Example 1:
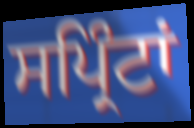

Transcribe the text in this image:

ਸਪ੍ਰਿੰਟਾਂ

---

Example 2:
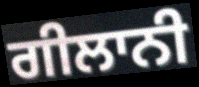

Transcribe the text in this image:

ਗੀਲਾਨੀ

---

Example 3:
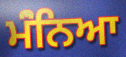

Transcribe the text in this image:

ਮੰਂਨਿਆ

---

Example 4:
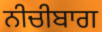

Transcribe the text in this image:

ਨੀਚੀਬਾਗ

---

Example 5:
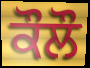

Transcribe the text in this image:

ਕੌਲੌ